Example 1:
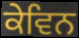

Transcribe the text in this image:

ਕੇਵਿਨ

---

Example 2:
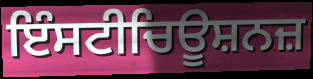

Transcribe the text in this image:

ਇੰਸਟੀਚਿਊਸ਼ਨਜ਼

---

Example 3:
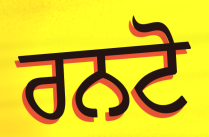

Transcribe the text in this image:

ਰਨਟੋ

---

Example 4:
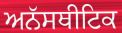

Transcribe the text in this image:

ਅਨੱਸਥੀਟਿਕ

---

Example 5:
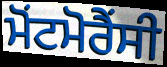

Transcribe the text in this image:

ਮੋਂਟਮੋਰੈਂਸੀ